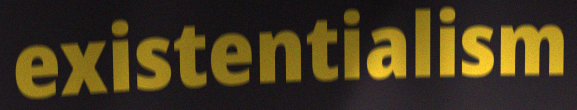
existentialism